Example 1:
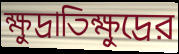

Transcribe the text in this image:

ক্ষুদ্রাতিক্ষুদ্রের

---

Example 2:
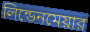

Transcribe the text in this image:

লিন্ডেনমেয়ার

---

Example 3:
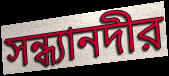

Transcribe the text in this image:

সন্ধ্যানদীর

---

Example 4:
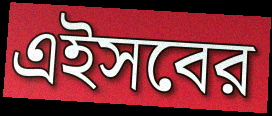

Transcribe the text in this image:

এইসবের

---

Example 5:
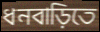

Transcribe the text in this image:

ধনবাড়িতে